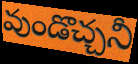
వుండొచ్చనీ